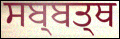
ਸਬ੍ਬਤ੍ਥ